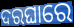
ଦରଘାରେ